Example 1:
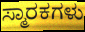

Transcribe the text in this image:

ಸ್ಮಾರಕಗಳು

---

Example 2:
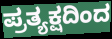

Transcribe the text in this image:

ಪ್ರತ್ಯಕ್ಷದಿಂದ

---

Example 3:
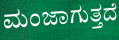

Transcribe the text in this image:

ಮಂಜಾಗುತ್ತದೆ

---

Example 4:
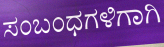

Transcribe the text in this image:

ಸಂಬಂಧಗಳಿಗಾಗಿ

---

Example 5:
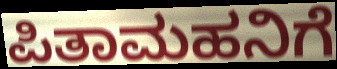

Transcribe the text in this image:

ಪಿತಾಮಹನಿಗೆ